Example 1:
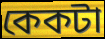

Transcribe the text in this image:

কেকটা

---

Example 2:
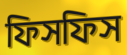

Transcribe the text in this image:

ফিসফিস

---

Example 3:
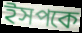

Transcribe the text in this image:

ইসপকে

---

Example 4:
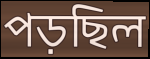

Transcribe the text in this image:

পড়ছিল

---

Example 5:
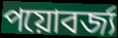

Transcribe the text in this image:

পয়োবর্জ্য